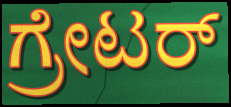
ಗ್ರೇಟರ್